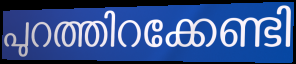
പുറത്തിറക്കേണ്ടി